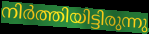
നിർത്തിയിട്ടിരുന്നു